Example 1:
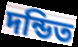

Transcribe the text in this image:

দন্ডিত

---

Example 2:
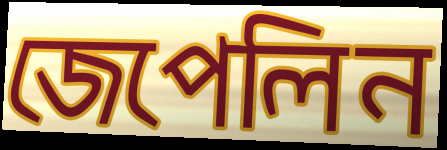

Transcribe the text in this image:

জেপেলিন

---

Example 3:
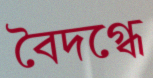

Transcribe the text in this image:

বৈদগ্ধে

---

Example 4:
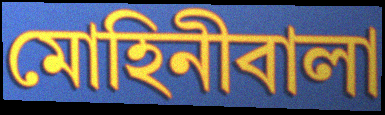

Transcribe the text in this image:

মোহিনীবালা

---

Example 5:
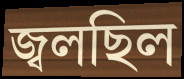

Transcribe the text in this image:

জ্বলছিল